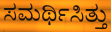
ಸಮರ್ಥಿಸಿತ್ತು